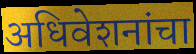
अधिवेशनांचा